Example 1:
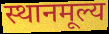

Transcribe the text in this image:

स्थानमूल्य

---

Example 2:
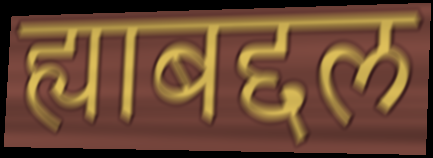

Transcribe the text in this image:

ह्याबद्दल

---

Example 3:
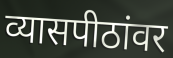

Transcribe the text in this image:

व्यासपीठांवर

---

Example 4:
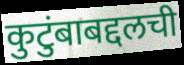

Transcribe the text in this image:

कुटुंबाबद्दलची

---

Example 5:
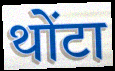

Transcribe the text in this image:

थोंटा